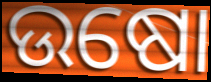
ଉଷୋ